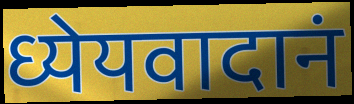
ध्येयवादानं